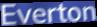
Everton